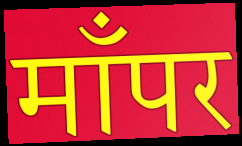
माँपर